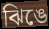
ঝিঙে